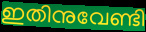
ഇതിനുവേണ്ടി